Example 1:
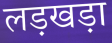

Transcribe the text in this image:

लड़खड़ा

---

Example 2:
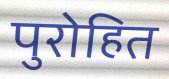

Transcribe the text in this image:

पुरोहित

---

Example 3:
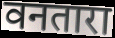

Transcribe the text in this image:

वनतारा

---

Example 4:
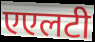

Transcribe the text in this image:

एएलटी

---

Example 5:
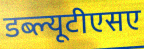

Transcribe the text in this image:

डब्ल्यूटीएसए